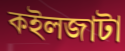
কইলজাটা